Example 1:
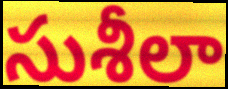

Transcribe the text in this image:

సుశీలా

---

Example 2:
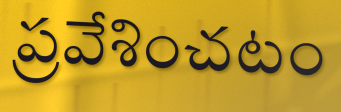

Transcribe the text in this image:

ప్రవేశించటం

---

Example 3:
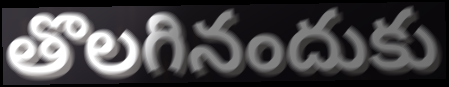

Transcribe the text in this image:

తొలగినందుకు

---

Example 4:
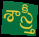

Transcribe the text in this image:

శాస్ర్తీ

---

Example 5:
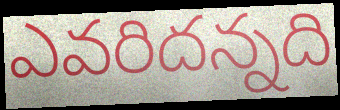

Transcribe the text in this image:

ఎవరిదన్నది